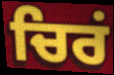
ਚਿਰਂ